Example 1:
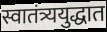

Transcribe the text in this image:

स्वातंत्र्ययुद्धात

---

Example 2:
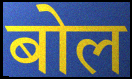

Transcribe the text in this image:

बोल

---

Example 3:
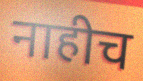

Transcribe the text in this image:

नाहीच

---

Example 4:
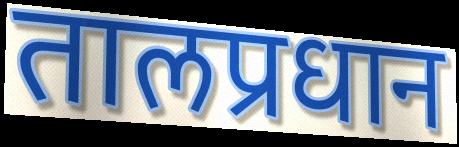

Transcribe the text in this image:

तालप्रधान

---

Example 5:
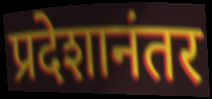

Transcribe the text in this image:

प्रदेशानंतर